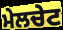
ਮੇਲਚੇਟ